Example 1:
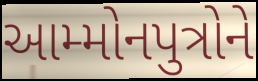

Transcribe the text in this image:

આમ્મોનપુત્રોને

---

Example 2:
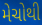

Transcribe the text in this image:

મેચોથી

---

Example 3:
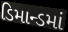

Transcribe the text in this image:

ડિમાન્ડમાં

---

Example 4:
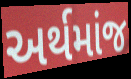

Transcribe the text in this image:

અર્થમાંજ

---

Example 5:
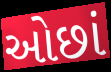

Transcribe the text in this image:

ઓછાં